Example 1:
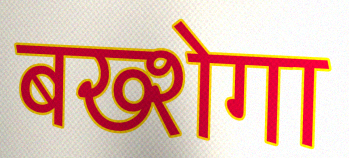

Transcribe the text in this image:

बख्शेगा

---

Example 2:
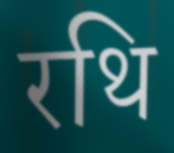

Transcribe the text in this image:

रथि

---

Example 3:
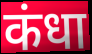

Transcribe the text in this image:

कंधा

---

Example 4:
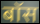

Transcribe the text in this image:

बॉस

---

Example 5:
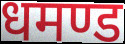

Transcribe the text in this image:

धमण्ड